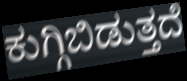
ಕುಗ್ಗಿಬಿಡುತ್ತದೆ